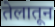
तेलातून